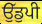
ਉੱਡੁਪੀ